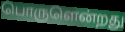
பொருளென்றது